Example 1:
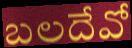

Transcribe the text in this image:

బలదేవో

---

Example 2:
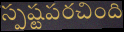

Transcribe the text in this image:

స్పష్టపరచింది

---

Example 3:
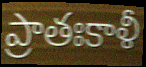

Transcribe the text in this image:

ప్రాతఃకాళీ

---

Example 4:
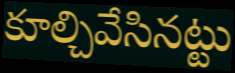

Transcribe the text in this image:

కూల్చివేసినట్టు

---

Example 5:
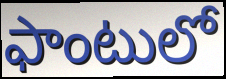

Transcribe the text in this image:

ఫాంటులో